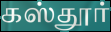
கஸ்தூர்